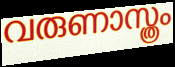
വരുണാസ്ത്രം